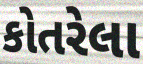
કોતરેલા